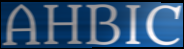
AHBIC